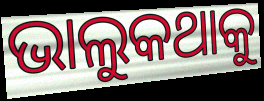
ଭାଲୁକଥାକୁ